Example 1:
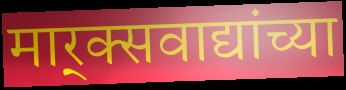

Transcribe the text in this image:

मार्क्सवाद्यांच्या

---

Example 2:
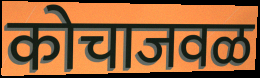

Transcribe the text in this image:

कोचाजवळ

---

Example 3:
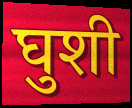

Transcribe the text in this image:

घुशी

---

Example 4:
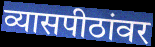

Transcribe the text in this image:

व्यासपीठांवर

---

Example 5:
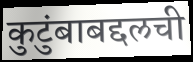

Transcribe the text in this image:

कुटुंबाबद्दलची